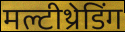
मल्टीथ्रेडिंग